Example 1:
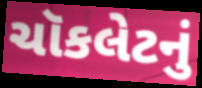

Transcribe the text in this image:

ચૉકલેટનું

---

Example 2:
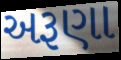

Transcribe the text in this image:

અરૂણા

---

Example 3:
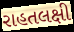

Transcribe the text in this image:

રાહતલક્ષી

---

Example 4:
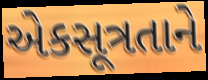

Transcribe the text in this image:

એકસૂત્રતાને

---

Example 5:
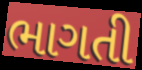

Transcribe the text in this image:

ભાગતી